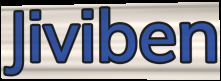
Jiviben